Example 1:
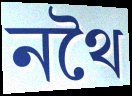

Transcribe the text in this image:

নথৈ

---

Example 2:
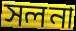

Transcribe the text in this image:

সলনা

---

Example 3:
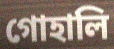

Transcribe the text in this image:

গোহালি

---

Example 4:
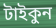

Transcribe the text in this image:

টাইকুন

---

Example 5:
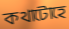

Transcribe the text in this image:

কথাটোহে